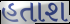
હતાશ